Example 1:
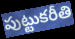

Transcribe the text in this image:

పుట్టుకరీతి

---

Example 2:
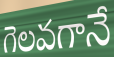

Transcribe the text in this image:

గెలవగానే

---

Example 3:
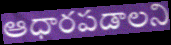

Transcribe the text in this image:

ఆధారపడాలని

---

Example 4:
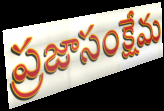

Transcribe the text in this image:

ప్రజాసంక్షేమ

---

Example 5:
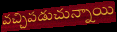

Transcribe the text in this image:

వచ్చిపడుచున్నాయి